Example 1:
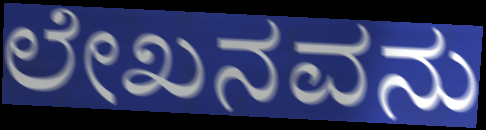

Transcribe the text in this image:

ಲೇಖನವನು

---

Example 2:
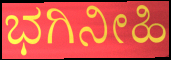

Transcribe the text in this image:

ಭಗಿನೀಹಿ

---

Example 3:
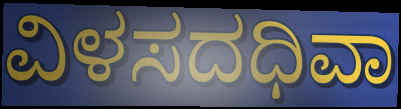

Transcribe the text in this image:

ವಿಳಸದಧಿವಾ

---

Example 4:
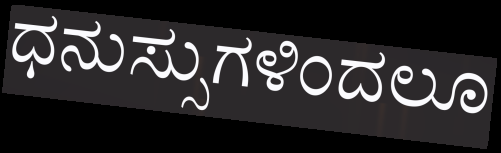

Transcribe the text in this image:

ಧನುಸ್ಸುಗಳಿಂದಲೂ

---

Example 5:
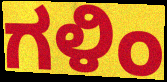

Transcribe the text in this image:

ಗಳಿಂ